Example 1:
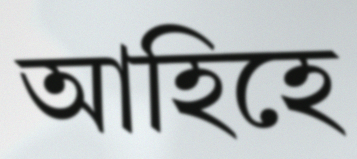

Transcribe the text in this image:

আহিহে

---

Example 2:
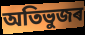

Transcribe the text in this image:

অতিভুজৰ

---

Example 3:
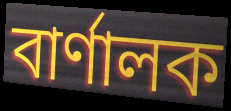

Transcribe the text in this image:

বাৰ্ণালক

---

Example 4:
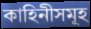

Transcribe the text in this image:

কাহিনীসমূহ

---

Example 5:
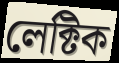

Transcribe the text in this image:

লেক্টিক